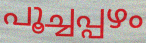
പൂച്ചപ്പഴം